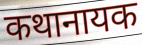
कथानायक